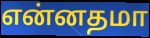
என்னதமா